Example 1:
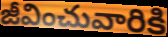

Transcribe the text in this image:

జీవించువారికి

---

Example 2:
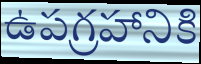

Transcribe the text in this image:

ఉపగ్రహానికి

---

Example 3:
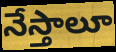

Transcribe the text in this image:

నేస్తాలూ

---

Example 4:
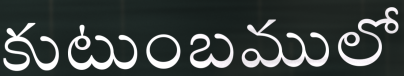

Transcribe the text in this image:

కుటుంబములో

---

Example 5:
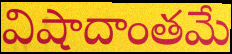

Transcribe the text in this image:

విషాదాంతమే